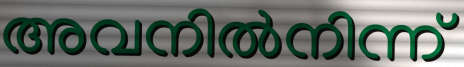
അവനിൽനിന്ന്